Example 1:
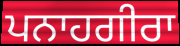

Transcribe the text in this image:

ਪਨਾਹਗੀਰਾ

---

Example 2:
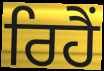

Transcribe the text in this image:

ਰਿਹੈੰ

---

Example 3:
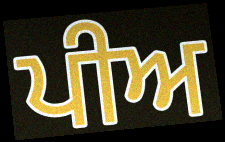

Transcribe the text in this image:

ਪੀਅ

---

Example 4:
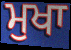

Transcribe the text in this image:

ਮੁਖਾ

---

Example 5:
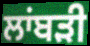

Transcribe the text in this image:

ਲਾਂਬੜੀ